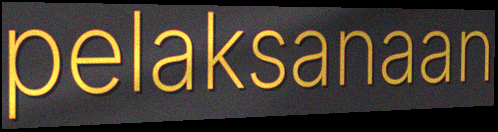
pelaksanaan